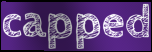
capped